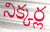
నిక్కర్ల